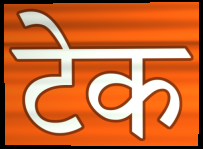
टेक